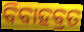
ବିବାହବ୍ରତ